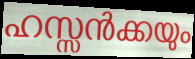
ഹസ്സൻക്കയും